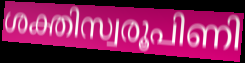
ശക്തിസ്വരൂപിണി